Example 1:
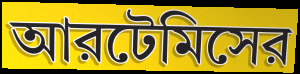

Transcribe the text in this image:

আরটেমিসের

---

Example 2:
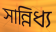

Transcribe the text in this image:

সান্নিধ্য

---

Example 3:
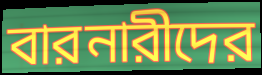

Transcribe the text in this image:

বারনারীদের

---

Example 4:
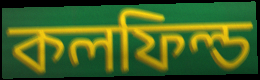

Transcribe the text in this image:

কলফিল্ড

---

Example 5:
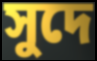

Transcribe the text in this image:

সুদে